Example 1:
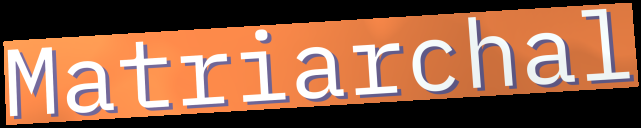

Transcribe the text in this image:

Matriarchal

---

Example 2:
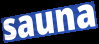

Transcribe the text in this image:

sauna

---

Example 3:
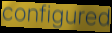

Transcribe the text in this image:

configured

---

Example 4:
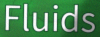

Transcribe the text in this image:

Fluids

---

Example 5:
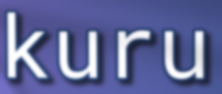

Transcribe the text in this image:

kuru